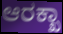
ಆರಕ್ಖಾ